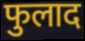
फुलाद